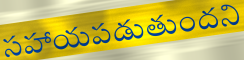
సహాయపడుతుందని